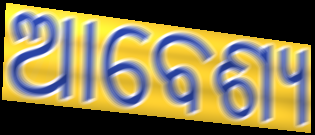
ଆବେଶ୍ୟ